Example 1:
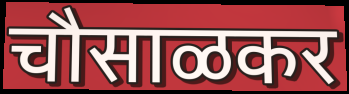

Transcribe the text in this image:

चौसाळकर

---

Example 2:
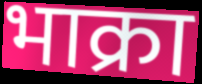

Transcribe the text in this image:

भाक्रा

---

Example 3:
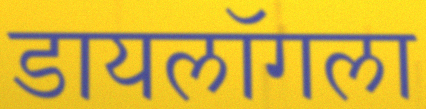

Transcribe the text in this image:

डायलॉगला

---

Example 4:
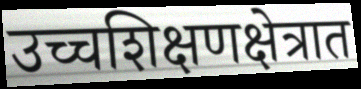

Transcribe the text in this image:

उच्चशिक्षणक्षेत्रात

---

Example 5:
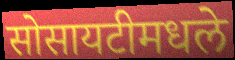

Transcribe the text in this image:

सोसायटीमधले